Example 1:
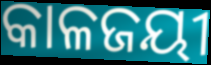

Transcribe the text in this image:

କାଳଜୟୀ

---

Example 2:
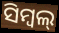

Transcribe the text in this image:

ସିମ୍ବଲ୍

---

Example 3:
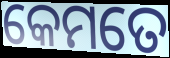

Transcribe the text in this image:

କେମତେ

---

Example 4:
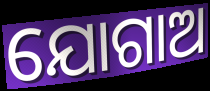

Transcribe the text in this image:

ଯୋଗାଅ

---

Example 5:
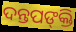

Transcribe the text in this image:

ଦନ୍ତପଙ୍‍କ୍ତି